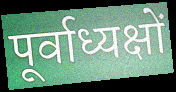
पूर्वाध्यक्षों